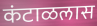
कंटाळलास